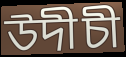
উদীচী